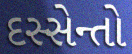
દસ્સેન્તો